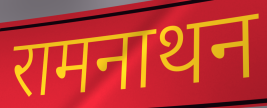
रामनाथन